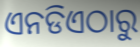
ଏନଡିଏଠାରୁ